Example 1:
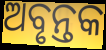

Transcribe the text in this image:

ଅବୃନ୍ତକ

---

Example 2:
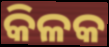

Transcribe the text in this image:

କିଳକ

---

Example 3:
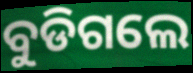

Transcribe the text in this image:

ବୁଡିଗଲେ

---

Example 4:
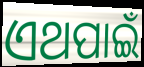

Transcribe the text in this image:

ଏଥପାଇଁ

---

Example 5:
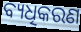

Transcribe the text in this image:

ବ୍ୟଧିକରଣ